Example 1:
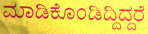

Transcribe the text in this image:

ಮಾಡಿಕೊಂಡಿದ್ದಿದ್ದರೆ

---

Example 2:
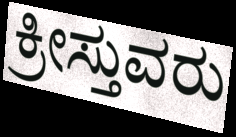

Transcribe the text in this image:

ಕ್ರೀಸ್ತುವರು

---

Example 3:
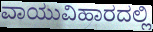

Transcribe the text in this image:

ವಾಯುವಿಹಾರದಲ್ಲಿ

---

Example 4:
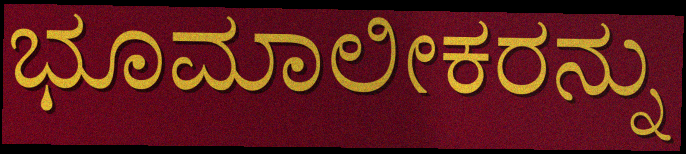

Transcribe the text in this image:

ಭೂಮಾಲೀಕರನ್ನು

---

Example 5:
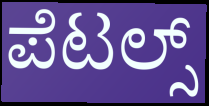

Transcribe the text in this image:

ಪೆಟಲ್ಸ್